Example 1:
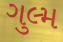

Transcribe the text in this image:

ગુલ્મ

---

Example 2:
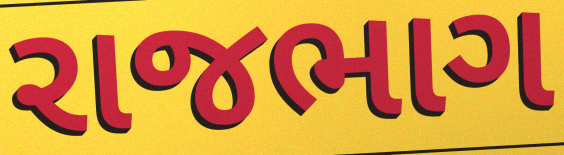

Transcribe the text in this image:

રાજભાગ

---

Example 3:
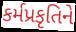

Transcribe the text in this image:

કર્મપ્રકૃતિને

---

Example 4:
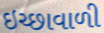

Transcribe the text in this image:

ઇચ્છાવાળી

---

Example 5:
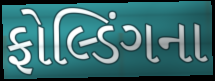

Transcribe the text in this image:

ફોલ્ડિંગના